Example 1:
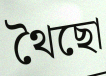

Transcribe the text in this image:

থৈছো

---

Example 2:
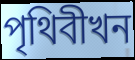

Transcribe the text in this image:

পৃথিবীখন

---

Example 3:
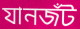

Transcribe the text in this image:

যানজঁট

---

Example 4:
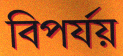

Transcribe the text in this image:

বিপৰ্যয়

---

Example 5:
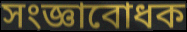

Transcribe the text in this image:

সংজ্ঞাবোধক